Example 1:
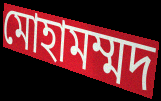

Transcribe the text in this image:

মোহামম্মদ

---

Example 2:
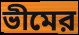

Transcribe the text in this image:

ভীমের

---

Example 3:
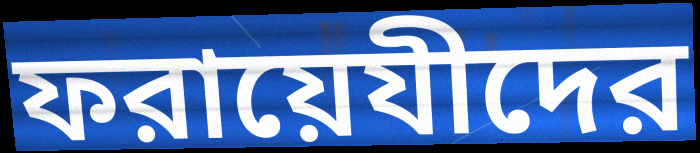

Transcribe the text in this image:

ফরায়েযীদের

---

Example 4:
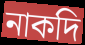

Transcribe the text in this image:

নাকদি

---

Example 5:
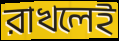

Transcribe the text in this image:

রাখলেই